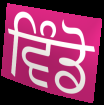
ਵਿੰਡੋ